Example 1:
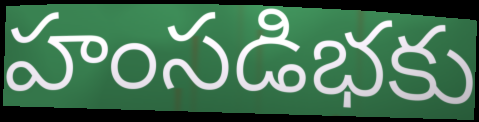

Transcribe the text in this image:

హంసడిభకు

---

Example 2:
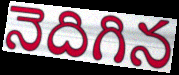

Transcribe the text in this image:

నెదిగిన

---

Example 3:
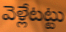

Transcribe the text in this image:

వెళ్లేటట్టు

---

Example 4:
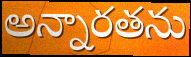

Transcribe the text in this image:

అన్నారతను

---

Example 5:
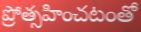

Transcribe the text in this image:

ప్రోత్సహించటంతో